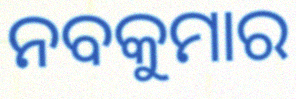
ନବକୁମାର